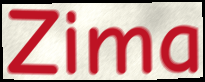
Zima